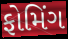
ફોમિંગ